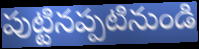
పుట్టినప్పటినుండి